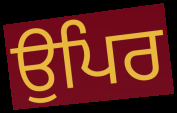
ਉਪਿਰ